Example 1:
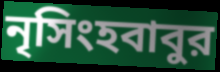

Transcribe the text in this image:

নৃসিংহবাবুর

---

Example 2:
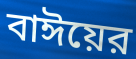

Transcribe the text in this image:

বাঈয়ের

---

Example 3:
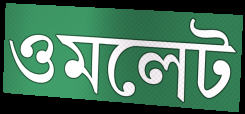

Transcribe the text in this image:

ওমলেট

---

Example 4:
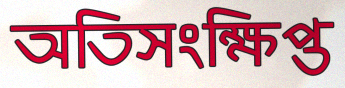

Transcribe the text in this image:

অতিসংক্ষিপ্ত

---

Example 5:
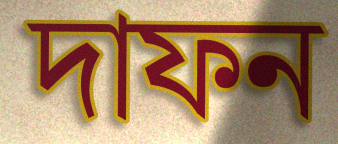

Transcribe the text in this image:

দাফন